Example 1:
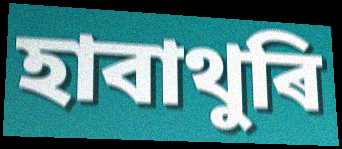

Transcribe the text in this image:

হাবাথুৰি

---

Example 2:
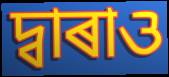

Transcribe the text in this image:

দ্বাৰাও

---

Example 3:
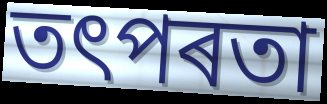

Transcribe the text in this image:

তৎপৰতা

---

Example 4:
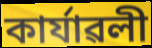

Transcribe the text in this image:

কাৰ্যাৱলী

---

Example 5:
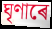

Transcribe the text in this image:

ঘৃণাৰে